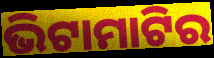
ଭିଟାମାଟିର